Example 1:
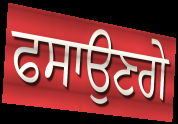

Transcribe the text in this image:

ਫਸਾਉਣਗੇ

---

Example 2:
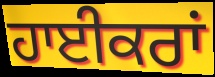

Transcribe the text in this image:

ਹਾਈਕਰਾਂ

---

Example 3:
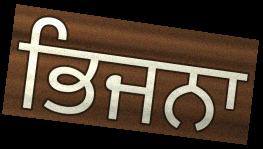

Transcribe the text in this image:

ਭਿਜਨਾ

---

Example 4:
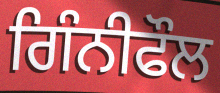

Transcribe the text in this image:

ਗਿੰਨੀਫੌਲ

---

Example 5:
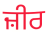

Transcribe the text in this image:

ਜ਼ੀਰ